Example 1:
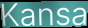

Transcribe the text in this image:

Kansa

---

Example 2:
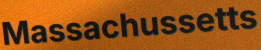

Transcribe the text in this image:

Massachussetts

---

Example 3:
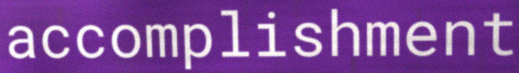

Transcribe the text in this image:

accomplishment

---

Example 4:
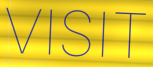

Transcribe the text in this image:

VISIT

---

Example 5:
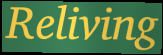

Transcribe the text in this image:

Reliving